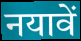
नयावें